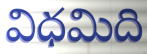
విధమిది